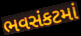
ભવસંકટમાં